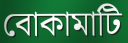
বোকামাটি